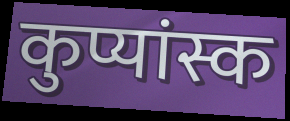
कुप्यांस्क